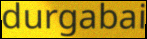
durgabai